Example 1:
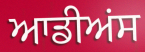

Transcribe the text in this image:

ਆਡੀਅਂਸ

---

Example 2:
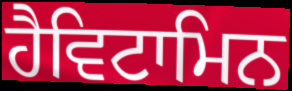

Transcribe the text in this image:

ਹੈਵਿਟਾਮਿਨ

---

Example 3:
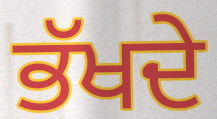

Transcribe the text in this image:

ਭੱਖਦੇ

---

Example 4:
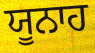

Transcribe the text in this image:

ਯੂਨਾਹ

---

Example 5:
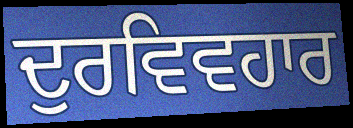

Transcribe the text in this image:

ਦੁਰਵਿਵਹਾਰ